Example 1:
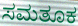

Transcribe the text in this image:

ಸಮತೂಕ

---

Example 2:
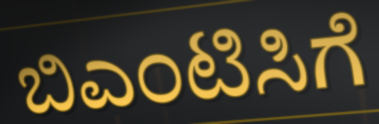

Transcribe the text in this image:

ಬಿಎಂಟಿಸಿಗೆ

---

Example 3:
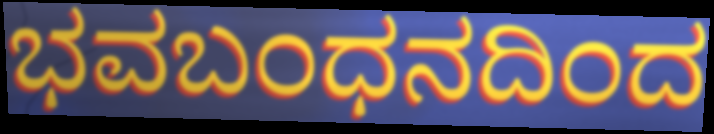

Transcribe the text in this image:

ಭವಬಂಧನದಿಂದ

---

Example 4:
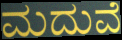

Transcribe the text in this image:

ಮದುವೆ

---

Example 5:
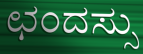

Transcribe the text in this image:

ಛಂದಸ್ಸು